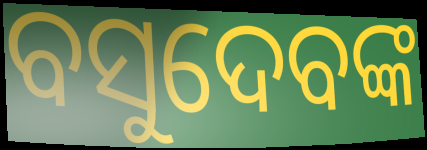
ବସୁଦେବଙ୍କ